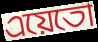
এয়েতো